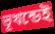
ভূখন্ডেই